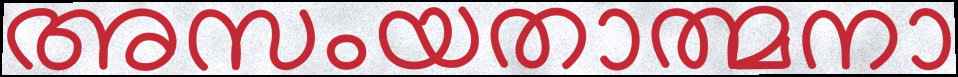
അസംയതാത്മനാ